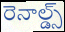
రెనాల్డ్స్